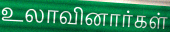
உலாவினார்கள்